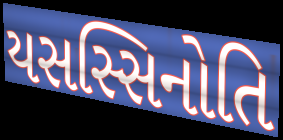
યસસ્સિનોતિ